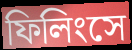
ফিলিংসে